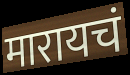
मारायचं